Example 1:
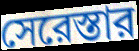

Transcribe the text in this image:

সেরেস্তার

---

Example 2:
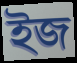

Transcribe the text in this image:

ইজ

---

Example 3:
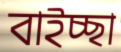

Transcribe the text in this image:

বাইচ্ছা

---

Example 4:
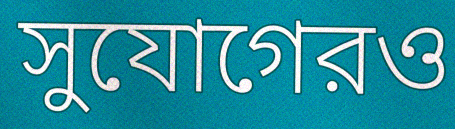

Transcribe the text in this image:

সুযোগেরও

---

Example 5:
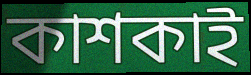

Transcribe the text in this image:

কাশকাই